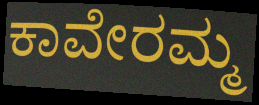
ಕಾವೇರಮ್ಮ